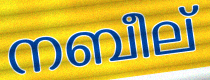
നബീല്